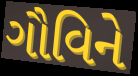
ગૌવિને